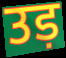
उड़